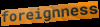
foreignness